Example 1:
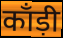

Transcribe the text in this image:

काँड़ी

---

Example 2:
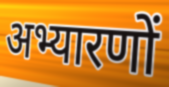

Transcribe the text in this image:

अभ्यारणों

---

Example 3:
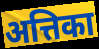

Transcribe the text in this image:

अत्तिका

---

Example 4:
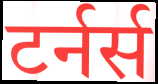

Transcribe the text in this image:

टर्नर्स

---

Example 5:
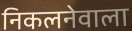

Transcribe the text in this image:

निकलनेवाला